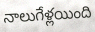
నాలుగేళ్లయింది